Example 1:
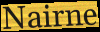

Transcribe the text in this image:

Nairne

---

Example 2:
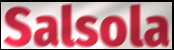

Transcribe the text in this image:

Salsola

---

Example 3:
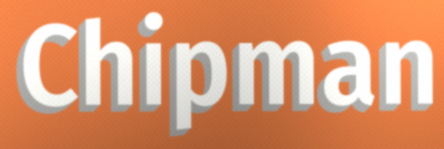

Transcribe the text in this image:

Chipman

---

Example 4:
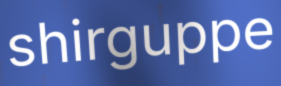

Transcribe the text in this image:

shirguppe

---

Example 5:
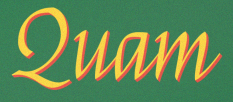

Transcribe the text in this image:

Quam